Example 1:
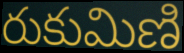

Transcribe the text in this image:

రుకుమిణి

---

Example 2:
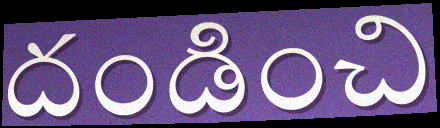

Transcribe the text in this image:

దండించి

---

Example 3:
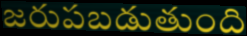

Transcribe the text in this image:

జరుపబడుతుంది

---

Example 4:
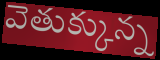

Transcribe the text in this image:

వెతుక్కున్న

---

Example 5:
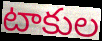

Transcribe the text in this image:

టాకుల